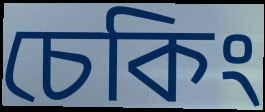
চেকিং